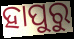
ହାପୁରୁ